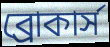
ব্রোকার্স